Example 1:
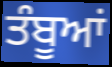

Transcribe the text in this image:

ਤੰਬੂਆਂ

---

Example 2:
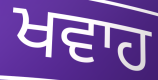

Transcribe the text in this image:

ਖਵਾਹ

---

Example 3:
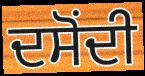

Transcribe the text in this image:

ਦਸੋਂਦੀ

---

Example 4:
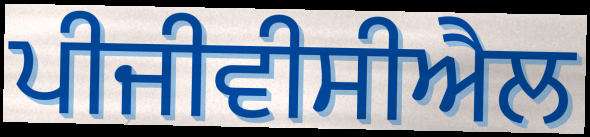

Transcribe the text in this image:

ਪੀਜੀਵੀਸੀਐਲ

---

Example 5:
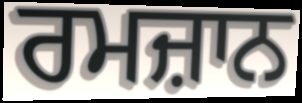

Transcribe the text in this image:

ਰਮਜ਼ਾਨ